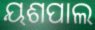
ୟଶପାଲ